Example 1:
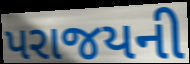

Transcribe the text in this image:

પરાજયની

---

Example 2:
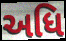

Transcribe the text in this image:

અધિ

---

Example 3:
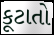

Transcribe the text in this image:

કૂટાતો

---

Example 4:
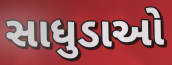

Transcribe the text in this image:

સાધુડાઓ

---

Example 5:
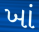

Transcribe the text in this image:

ખાં